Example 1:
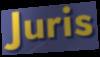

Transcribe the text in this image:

Juris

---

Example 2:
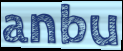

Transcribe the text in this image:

anbu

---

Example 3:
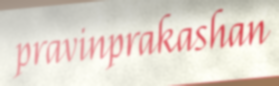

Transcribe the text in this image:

pravinprakashan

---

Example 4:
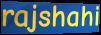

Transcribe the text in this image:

rajshahi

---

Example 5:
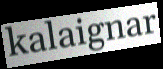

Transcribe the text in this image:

kalaignar